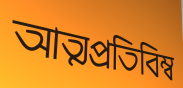
আত্মপ্রতিবিম্ব